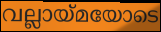
വല്ലായ്മയോടെ